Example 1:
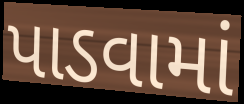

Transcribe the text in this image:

પાડવામાં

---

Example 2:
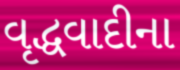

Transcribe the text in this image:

વૃદ્ધવાદીના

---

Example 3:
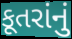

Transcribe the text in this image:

કૂતરાંનું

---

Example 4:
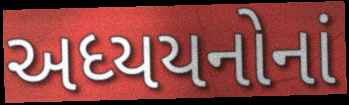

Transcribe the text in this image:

અધ્યયનોનાં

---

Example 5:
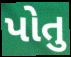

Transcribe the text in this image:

પોતુ